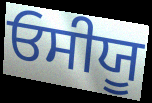
ਓਸੀਯੂ